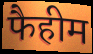
फैहीम